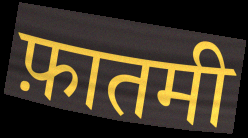
फ़ातमी